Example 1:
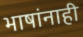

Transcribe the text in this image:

भाषांनाही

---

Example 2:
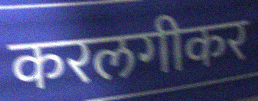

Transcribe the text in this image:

करलगीकर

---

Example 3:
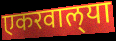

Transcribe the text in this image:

एकरवाल्या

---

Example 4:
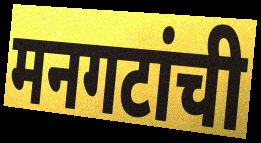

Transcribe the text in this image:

मनगटांची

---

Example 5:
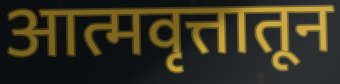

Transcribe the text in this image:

आत्मवृत्तातून